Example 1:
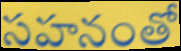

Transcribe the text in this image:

సహనంతో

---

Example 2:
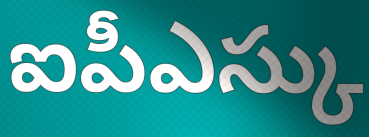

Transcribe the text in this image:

ఐపీఎస్కు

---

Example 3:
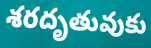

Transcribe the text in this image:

శరదృతువుకు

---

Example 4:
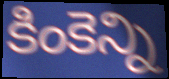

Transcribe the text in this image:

కింకెన్ని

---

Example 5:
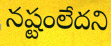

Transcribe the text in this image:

నష్టంలేదని